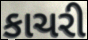
કાચરી